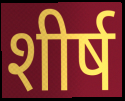
शीर्ष